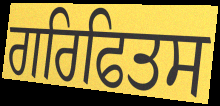
ਗਰਿਫਿਤਸ